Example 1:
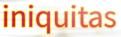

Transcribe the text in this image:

iniquitas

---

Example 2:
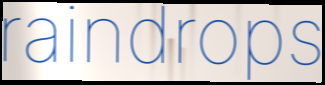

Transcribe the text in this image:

raindrops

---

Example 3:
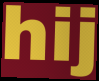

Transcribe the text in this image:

hij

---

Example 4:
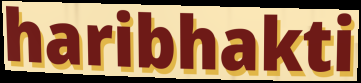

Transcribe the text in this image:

haribhakti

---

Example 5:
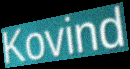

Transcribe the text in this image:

Kovind